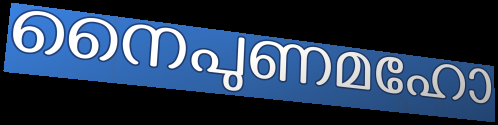
നൈപുണമഹോ